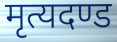
मृत्यदण्ड